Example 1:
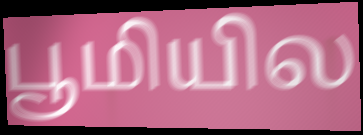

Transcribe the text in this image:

பூமியில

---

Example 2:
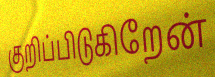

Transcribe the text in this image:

குறிப்பிடுகிறேன்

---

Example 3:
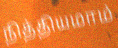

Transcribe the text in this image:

நித்தியமாம்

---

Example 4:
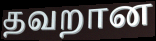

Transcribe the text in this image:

தவறான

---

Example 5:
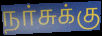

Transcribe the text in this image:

நர்சுக்கு